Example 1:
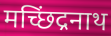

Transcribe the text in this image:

मच्छिंद्रनाथ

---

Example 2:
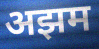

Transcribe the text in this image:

अझम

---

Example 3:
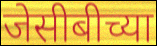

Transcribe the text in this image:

जेसीबीच्या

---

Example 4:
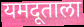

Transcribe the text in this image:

यमदूताला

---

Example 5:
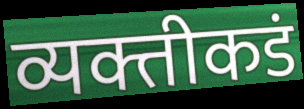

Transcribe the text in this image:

व्यक्तीकडं